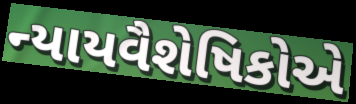
ન્યાયવૈશેષિકોએ